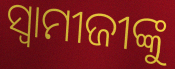
ସ୍ଵାମୀଜୀଙ୍କୁ